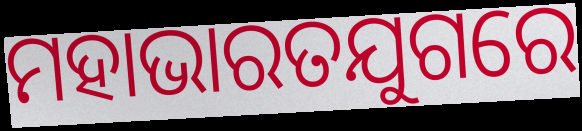
ମହାଭାରତଯୁଗରେ